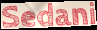
Sedani